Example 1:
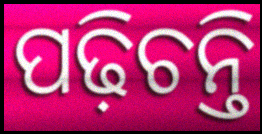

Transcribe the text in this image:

ପଢ଼ିଚନ୍ତି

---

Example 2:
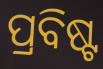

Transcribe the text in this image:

ପ୍ରବିଷ୍ଟ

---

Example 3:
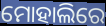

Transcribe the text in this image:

ମୋହାଲିରେ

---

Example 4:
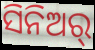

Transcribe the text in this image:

ସିନିଅର୍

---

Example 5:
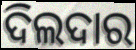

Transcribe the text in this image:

ଦିଲଦାର